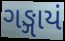
ગઙ્ગાયં